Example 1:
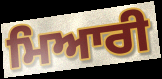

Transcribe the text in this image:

ਮਿਆਰੀ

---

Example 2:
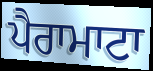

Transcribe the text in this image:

ਪੈਰਾਮਾਟਾ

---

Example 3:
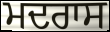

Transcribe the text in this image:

ਮਦਰਾਸ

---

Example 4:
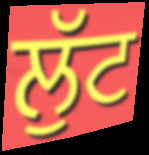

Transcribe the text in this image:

ਲੁੱਟ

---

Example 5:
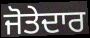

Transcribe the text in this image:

ਜੋਤੇਦਾਰ